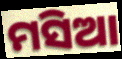
ମସିଆ